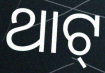
ଥାଟ୍